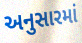
અનુસારમાં